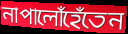
নাপালোঁহেঁতেন